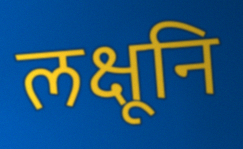
लक्षूनि